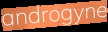
androgyne